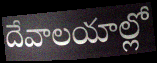
దేవాలయాల్లో